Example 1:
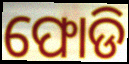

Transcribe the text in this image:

ଫୋଡି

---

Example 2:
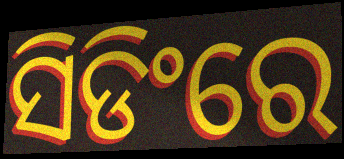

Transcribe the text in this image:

ସିଡିଂରେ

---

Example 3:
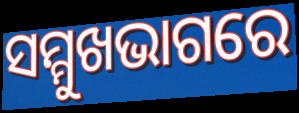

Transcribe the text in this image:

ସମ୍ମୁଖଭାଗରେ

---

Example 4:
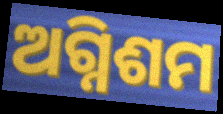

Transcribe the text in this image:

ଅଗ୍ନିଶମ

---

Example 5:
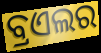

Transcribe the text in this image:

ବ୍ରଏଲର